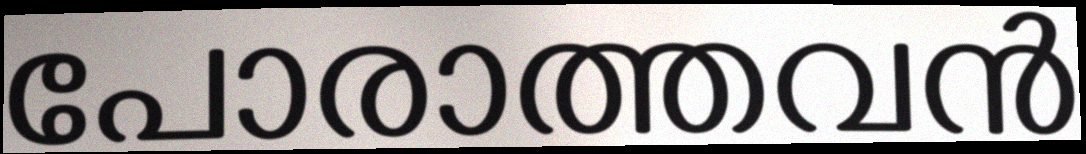
പോരാത്തവൻ